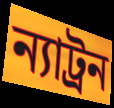
ন্যাট্রন